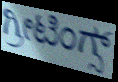
ಗ್ರೀಟಿಂಗ್ಸ್